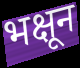
भक्षून